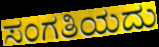
ಸಂಗತಿಯದು